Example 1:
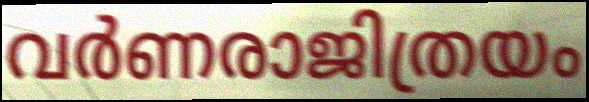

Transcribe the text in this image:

വർണരാജിത്രയം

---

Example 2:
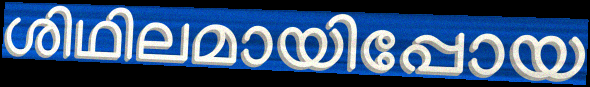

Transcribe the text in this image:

ശിഥിലമായിപ്പോയ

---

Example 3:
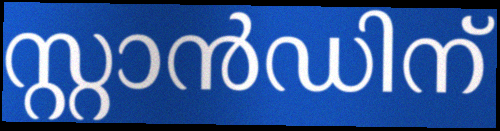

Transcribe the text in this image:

സ്റ്റാൻഡിന്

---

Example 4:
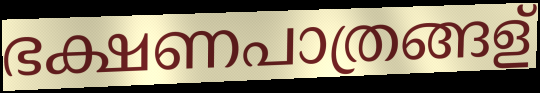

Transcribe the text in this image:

ഭക്ഷണപാത്രങ്ങള്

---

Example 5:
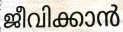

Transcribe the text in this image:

ജീവിക്കാൻ